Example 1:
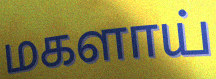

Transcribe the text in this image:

மகளாய்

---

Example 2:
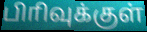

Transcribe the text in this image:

பிரிவுக்குள்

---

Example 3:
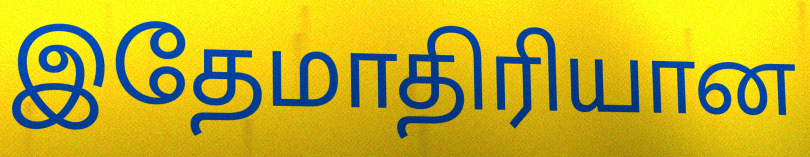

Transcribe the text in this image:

இதேமாதிரியான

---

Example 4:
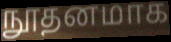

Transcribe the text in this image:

நூதனமாக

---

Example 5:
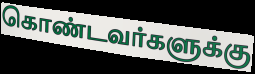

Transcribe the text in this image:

கொண்டவர்களுக்கு